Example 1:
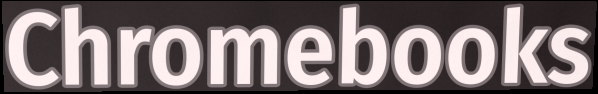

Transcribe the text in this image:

Chromebooks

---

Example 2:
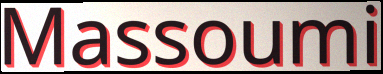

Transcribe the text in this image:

Massoumi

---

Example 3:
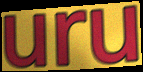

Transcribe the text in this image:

uru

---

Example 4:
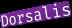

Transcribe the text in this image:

Dorsalis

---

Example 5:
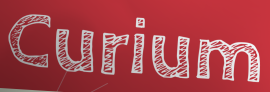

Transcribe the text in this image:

Curium